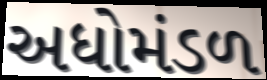
અધોમંડળ